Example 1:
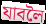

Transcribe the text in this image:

যাবলৈ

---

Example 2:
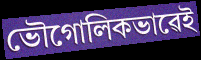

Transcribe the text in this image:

ভৌগোলিকভাৱেই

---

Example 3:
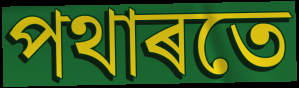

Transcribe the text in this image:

পথাৰতে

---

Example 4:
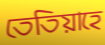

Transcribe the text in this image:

তেতিয়াহে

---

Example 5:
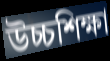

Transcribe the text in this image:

উচ্চশিক্ষা